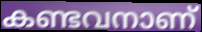
കണ്ടവനാണ്